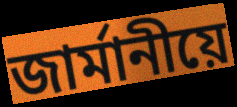
জাৰ্মানীয়ে